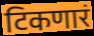
टिकणारं